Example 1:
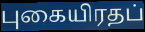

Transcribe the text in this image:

புகையிரதப்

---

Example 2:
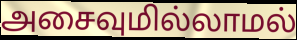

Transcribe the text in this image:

அசைவுமில்லாமல்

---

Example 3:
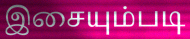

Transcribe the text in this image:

இசையும்படி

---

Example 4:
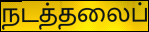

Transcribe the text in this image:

நடத்தலைப்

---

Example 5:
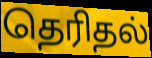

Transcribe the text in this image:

தெரிதல்